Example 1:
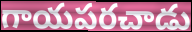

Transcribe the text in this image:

గాయపరచాడు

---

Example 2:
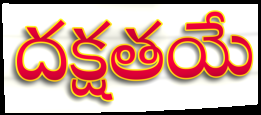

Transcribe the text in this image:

దక్షతయే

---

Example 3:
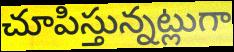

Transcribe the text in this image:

చూపిస్తున్నట్లుగా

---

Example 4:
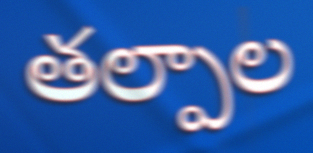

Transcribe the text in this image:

తల్పాల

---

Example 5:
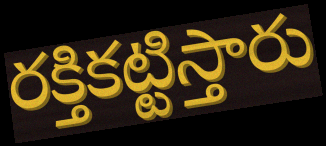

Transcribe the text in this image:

రక్తికట్టిస్తారు